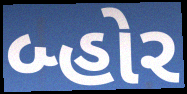
બ્હોર